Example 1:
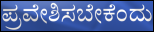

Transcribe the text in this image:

ಪ್ರವೇಶಿಸಬೇಕೆಂದು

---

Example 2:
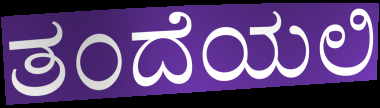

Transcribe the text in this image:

ತಂದೆಯಲಿ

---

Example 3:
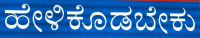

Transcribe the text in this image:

ಹೇಳಿಕೊಡಬೇಕು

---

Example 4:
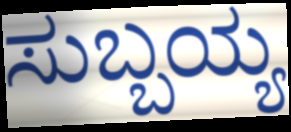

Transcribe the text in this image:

ಸುಬ್ಬಯ್ಯ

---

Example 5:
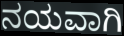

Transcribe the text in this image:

ನಯವಾಗಿ